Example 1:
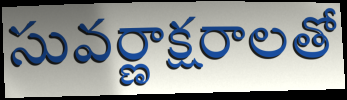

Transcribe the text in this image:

సువర్ణాక్షరాలతో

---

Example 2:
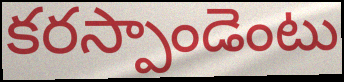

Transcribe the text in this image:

కరస్పాండెంటు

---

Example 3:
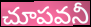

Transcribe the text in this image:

చూపవనీ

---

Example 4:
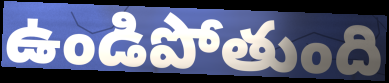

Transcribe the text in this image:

ఉండిపోతుంది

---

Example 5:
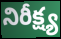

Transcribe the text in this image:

నిరీక్ష్య